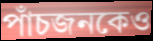
পাঁচজনকেও